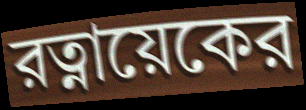
রত্নায়েকের